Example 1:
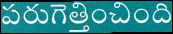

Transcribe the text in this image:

పరుగెత్తించింది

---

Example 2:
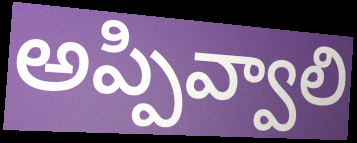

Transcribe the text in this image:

అప్పివ్వాలి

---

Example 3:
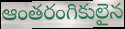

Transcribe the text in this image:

ఆంతరంగికులైన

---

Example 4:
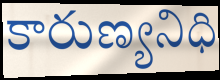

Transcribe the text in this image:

కారుణ్యనిధి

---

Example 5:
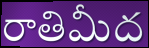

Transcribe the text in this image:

రాతిమీద